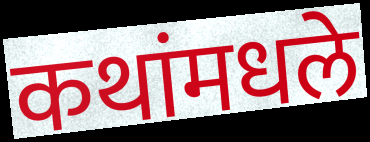
कथांमधले